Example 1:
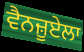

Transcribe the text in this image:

ਵੈਨਜ਼ੂਏਲਾ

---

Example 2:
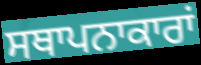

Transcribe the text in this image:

ਸਥਾਪਨਾਕਾਰਾਂ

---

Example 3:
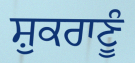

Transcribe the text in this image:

ਸ਼ੁਕਰਾਣੂੰ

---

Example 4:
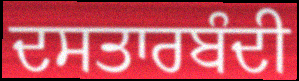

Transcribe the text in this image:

ਦਸਤਾਰਬੰਦੀ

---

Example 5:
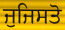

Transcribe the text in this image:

ਜੁਜਿਸਤੋ